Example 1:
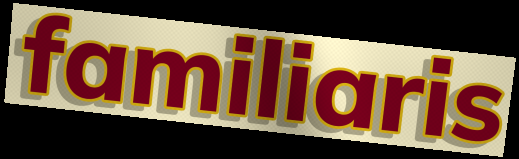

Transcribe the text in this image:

familiaris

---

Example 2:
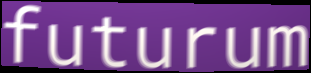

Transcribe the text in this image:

futurum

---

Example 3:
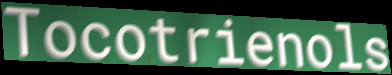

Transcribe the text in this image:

Tocotrienols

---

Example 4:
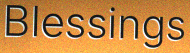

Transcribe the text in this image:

Blessings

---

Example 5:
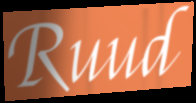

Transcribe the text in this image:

Ruud